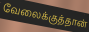
வேலைக்குத்தான்